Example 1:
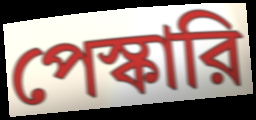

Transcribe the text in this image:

পেস্কারি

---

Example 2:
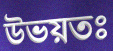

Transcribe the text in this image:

উভয়তঃ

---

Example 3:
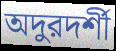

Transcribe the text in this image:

অদুরদর্শী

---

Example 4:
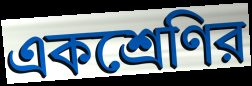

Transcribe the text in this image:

একশ্রেণির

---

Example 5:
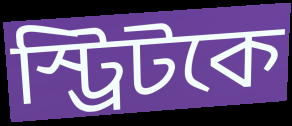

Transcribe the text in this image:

স্ট্রিটকে